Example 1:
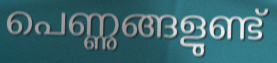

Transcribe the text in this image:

പെണ്ണുങ്ങളുണ്ട്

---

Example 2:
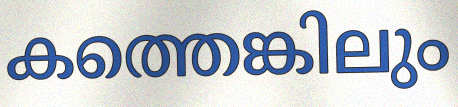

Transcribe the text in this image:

കത്തെങ്കിലും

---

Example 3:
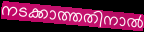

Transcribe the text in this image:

നടക്കാത്തതിനാൽ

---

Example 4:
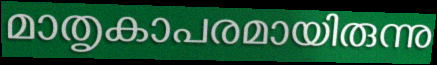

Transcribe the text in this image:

മാതൃകാപരമായിരുന്നു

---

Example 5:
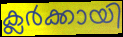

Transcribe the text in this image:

ക്ലർക്കായി